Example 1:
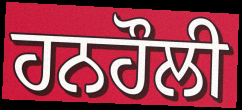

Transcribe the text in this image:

ਹਨਹੌਲੀ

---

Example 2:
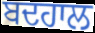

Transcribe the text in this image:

ਬਦਹਾਲ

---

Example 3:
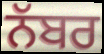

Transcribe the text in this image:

ਨੱਬਰ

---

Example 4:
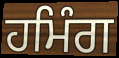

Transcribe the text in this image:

ਹਮਿੰਗ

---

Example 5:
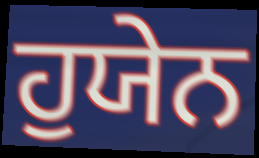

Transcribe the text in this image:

ਹੁਯੇਨ